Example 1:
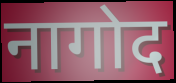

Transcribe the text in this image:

नागोद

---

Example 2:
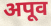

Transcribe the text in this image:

अपूव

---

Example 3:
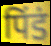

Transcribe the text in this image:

पिंडं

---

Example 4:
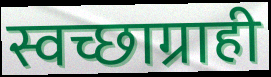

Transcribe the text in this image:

स्वच्छाग्राही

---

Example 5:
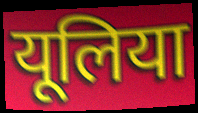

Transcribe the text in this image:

यूलिया